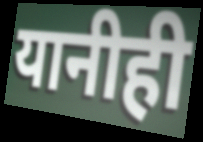
यानीही